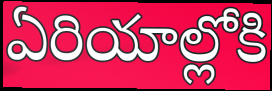
ఏరియాల్లోకి